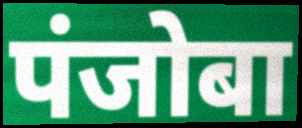
पंजोबा